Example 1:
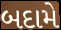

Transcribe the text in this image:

બદામે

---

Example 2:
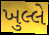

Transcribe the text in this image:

ખુલ્લે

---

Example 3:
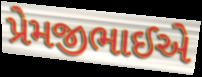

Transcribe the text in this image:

પ્રેમજીભાઈએ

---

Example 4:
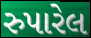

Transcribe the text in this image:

રુપારેલ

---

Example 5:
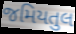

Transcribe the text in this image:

જમિયતુલ